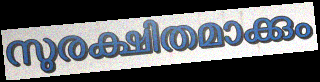
സുരക്ഷിതമാക്കും